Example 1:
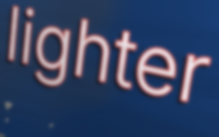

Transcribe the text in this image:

lighter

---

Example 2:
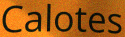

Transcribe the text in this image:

Calotes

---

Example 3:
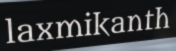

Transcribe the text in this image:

laxmikanth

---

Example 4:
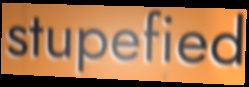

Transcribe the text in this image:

stupefied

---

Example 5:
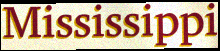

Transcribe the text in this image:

Mississippi